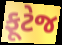
ફૂટેજ